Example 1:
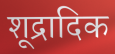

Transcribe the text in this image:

शूद्रादिक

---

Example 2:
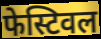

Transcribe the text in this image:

फेस्टिवल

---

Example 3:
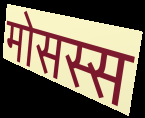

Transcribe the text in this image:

मोसस्स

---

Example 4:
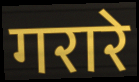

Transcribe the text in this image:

गरारे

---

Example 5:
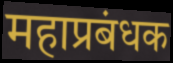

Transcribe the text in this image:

महाप्रबंधक